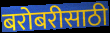
बरोबरीसाठी